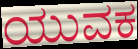
ಯುವಕ